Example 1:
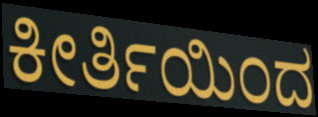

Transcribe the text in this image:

ಕೀರ್ತಿಯಿಂದ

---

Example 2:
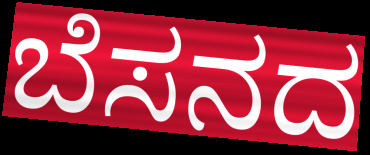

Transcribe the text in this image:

ಬೆಸನದ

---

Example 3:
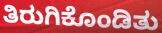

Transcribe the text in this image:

ತಿರುಗಿಕೊಂಡಿತು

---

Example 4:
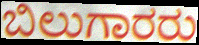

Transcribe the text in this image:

ಬಿಲುಗಾರರು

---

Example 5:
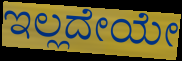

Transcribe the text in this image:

ಇಲ್ಲದೇಯೇ